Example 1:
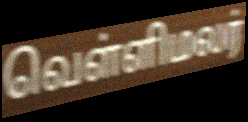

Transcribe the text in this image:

வெள்ளிமலர்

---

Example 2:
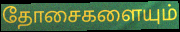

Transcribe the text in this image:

தோசைகளையும்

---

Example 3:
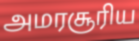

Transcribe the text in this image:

அமரசூரிய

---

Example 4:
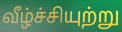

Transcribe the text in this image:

வீழ்ச்சியுற்று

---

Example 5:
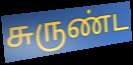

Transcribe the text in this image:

சுருண்ட